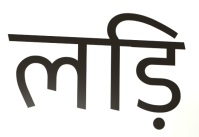
लड़ि